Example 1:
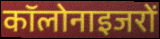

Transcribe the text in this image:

कॉलोनाइजरों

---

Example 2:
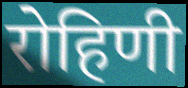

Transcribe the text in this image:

रोहिणी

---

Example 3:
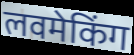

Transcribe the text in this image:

लवमेकिंग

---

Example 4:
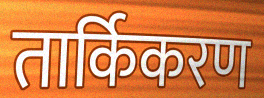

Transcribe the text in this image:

तार्किकरण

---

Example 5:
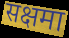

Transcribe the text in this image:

सक्षमा